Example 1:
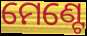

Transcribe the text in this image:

ମେଣ୍ଟେ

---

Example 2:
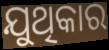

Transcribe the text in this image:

ଯୁଥିକାର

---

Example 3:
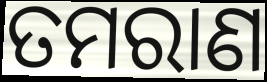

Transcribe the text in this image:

ତମରାଣ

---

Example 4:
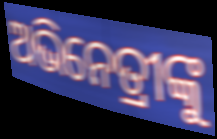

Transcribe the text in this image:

ଅଭିନେତ୍ରୀଙ୍କୁ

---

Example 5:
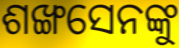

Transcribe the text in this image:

ଶଙ୍ଖସେନଙ୍କୁ